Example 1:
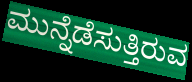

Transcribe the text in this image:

ಮುನ್ನೆಡೆಸುತ್ತಿರುವ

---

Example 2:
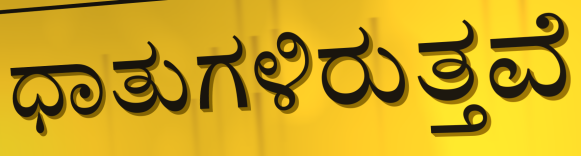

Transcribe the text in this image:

ಧಾತುಗಳಿರುತ್ತವೆ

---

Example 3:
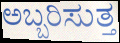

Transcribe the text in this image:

ಅಬ್ಬರಿಸುತ್ತ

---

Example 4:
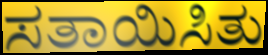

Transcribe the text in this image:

ಸತಾಯಿಸಿತು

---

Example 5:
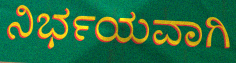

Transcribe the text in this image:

ನಿರ್ಭಯವಾಗಿ